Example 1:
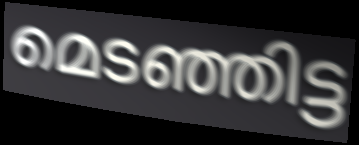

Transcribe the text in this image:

മെടഞ്ഞിട്ട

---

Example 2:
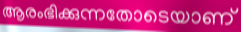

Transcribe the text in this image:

ആരംഭിക്കുന്നതോടെയാണ്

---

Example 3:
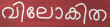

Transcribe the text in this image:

വിലോകിത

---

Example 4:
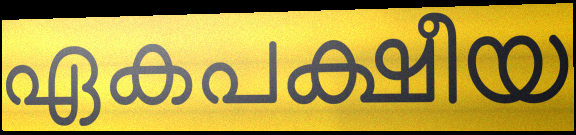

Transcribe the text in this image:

ഏകപക്ഷീയ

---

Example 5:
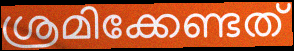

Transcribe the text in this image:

ശ്രമിക്കേണ്ടത്